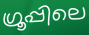
ഗ്രൂപ്പിലെ